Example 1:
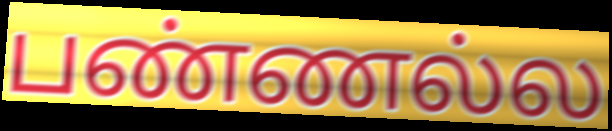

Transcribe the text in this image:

பண்ணல்ல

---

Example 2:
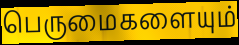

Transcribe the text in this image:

பெருமைகளையும்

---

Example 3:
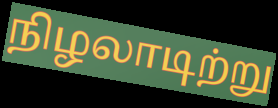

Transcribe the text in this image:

நிழலாடிற்று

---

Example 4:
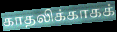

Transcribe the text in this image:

காதலிக்காகக்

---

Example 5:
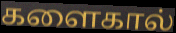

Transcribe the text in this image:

களைகால்